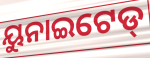
ୟୁନାଇଟେଡ୍